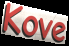
Kove